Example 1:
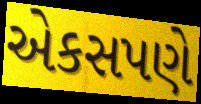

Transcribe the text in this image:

એકસપણે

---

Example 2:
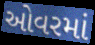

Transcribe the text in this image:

ઓવરમાં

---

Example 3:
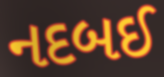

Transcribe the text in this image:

નદબઈ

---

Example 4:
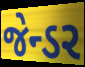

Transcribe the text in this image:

જેન્ડર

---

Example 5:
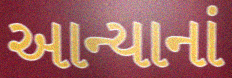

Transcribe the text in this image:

આન્યાનાં